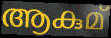
ആകുമ്